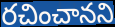
రచించానని